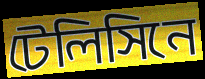
টেলিসিনে